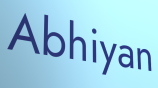
Abhiyan